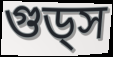
গুড্স